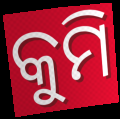
କୁମି